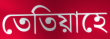
তেতিয়াহে